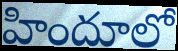
హిందూలో